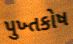
પુખ્તકોષ